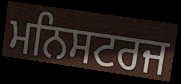
ਮਨਿਸਟਰਜ